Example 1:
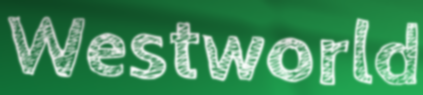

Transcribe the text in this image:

Westworld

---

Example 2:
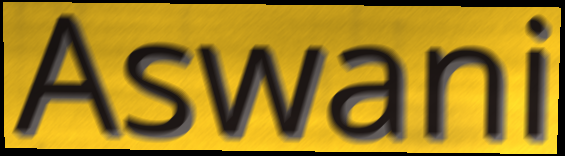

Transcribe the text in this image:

Aswani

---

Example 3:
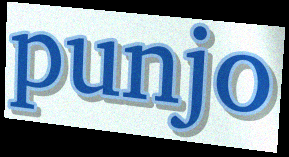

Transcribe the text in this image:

punjo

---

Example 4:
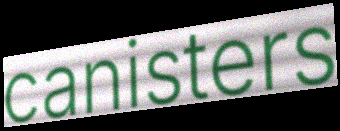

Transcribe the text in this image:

canisters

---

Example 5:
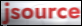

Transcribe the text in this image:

jsource